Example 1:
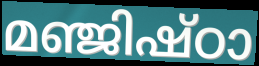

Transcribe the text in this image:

മഞ്ജിഷ്ഠാ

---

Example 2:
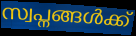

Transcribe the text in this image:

സ്വപ്നങ്ങൾക്ക്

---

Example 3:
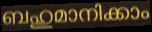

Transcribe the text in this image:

ബഹുമാനിക്കാം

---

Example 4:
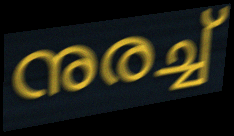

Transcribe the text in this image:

നുരച്ച്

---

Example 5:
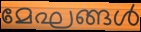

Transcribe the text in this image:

മേഘങ്ങൾ